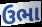
ઉભા